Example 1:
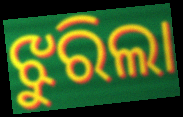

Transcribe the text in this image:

ଝୁରିଲା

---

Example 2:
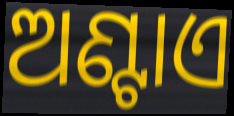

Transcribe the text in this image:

ଅଣ୍ଟାଏ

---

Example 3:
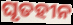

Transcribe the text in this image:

ଘୃତହୀନ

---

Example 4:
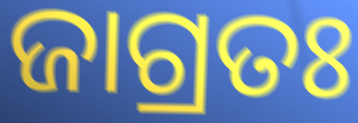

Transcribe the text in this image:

ଜାଗ୍ରତଃ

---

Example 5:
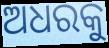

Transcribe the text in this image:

ଅଧରକୁ